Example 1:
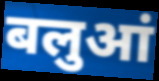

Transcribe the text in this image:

बलुआं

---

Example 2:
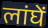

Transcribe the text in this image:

लांघें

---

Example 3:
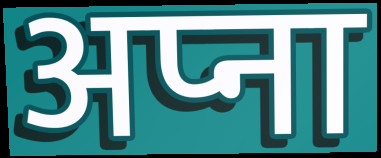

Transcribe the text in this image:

अप्ना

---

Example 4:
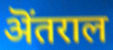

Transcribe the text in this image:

ऄंतराल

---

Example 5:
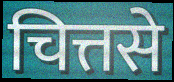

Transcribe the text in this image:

चित्तसे